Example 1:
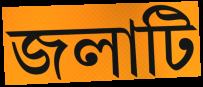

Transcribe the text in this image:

জলাটি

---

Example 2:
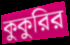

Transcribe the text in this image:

কুকুরির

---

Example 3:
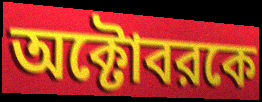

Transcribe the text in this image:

অক্টোবরকে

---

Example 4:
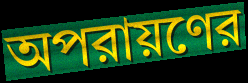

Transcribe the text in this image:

অপরায়ণের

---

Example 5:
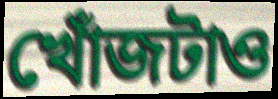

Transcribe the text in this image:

খোঁজটাও